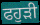
ਫਹੁੜੀ